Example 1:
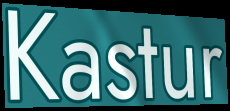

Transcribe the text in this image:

Kastur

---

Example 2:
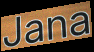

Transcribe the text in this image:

Jana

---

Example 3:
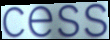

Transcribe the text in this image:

cess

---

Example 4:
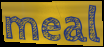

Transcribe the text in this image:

meal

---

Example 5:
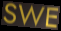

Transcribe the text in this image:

SWE